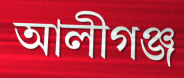
আলীগঞ্জ